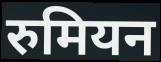
रुमियन